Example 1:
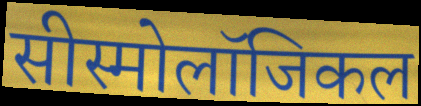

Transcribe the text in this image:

सीस्मोलॉजिकल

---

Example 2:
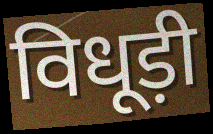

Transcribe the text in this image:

विधूड़ी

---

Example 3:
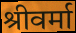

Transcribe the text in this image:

श्रीवर्मा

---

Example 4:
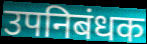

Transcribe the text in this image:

उपनिबंधक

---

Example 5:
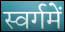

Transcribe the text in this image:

स्वर्गमें